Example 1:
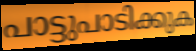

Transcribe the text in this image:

പാട്ടുപാടിക്കുക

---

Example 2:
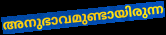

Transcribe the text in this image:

അനുഭാവമുണ്ടായിരുന്ന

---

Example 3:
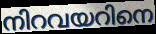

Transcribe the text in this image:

നിറവയറിനെ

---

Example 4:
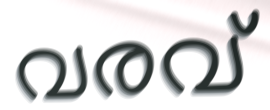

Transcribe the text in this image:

വരവ്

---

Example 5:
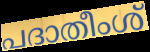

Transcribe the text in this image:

പദാതീംശ്